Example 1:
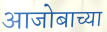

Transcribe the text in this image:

आजोबाच्या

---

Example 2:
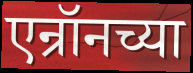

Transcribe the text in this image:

एन्रॉनच्या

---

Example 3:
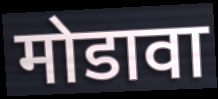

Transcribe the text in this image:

मोडावा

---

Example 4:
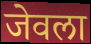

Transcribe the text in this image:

जेवला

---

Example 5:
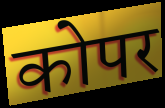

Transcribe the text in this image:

कोपर